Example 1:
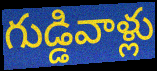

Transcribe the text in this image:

గుడ్డివాళ్లు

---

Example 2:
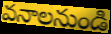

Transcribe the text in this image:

వనాలనుండి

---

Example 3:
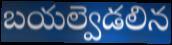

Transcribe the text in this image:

బయల్వెడలిన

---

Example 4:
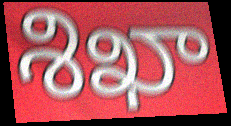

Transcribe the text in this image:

శిఖా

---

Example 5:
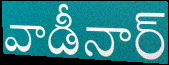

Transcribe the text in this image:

వాడీనార్